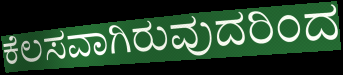
ಕೆಲಸವಾಗಿರುವುದರಿಂದ